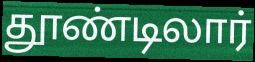
தூண்டிலார்